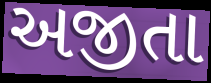
અજીતા